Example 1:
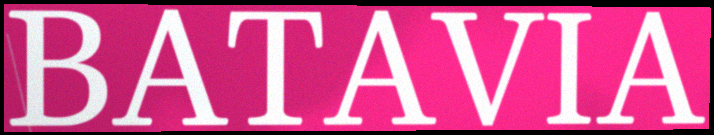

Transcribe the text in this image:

BATAVIA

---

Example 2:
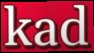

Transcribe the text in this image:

kad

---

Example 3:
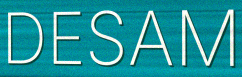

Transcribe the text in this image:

DESAM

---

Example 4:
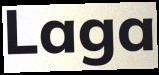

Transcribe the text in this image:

Laga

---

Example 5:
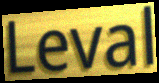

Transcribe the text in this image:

Leval